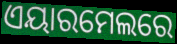
ଏୟାରମେଲରେ